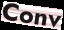
Conv